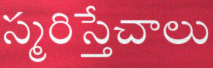
స్మరిస్తేచాలు